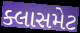
ક્લાસમેટ